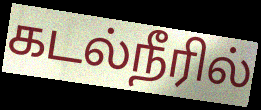
கடல்நீரில்